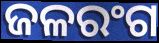
ଜଳରଂଗ